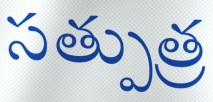
సత్పుత్ర